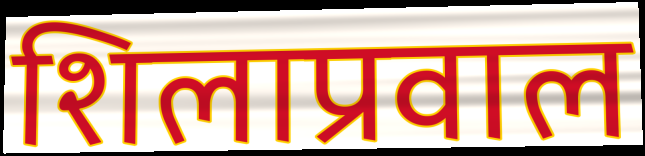
शिलाप्रवाल